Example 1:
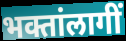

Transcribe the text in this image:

भक्तांलागीं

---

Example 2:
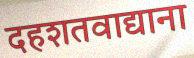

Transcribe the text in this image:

दहशतवाद्याना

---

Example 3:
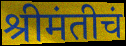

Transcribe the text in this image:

श्रीमंतीचं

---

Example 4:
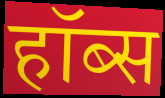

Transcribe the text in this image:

हॉब्स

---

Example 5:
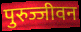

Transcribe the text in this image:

पुरुज्जीवन